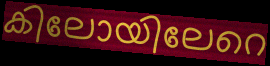
കിലോയിലേറെ